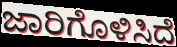
ಜಾರಿಗೊಳಿಸಿದೆ